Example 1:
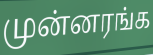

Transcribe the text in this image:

முன்னரங்க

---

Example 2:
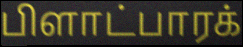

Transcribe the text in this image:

பிளாட்பாரக்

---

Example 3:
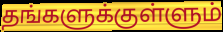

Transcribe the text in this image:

தங்களுக்குள்ளும்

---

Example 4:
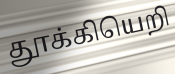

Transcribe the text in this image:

தூக்கியெறி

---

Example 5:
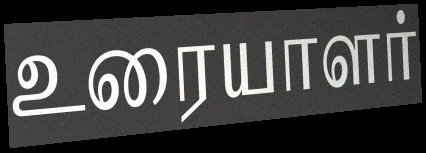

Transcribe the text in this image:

உரையாளர்